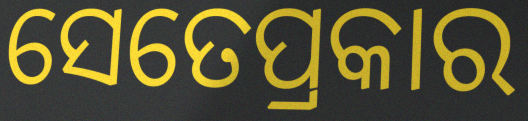
ସେତେପ୍ରକାର